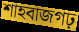
শাহবাজগঢ়